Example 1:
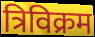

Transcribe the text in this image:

त्रिविक्रम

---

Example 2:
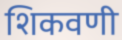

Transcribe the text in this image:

शिकवणी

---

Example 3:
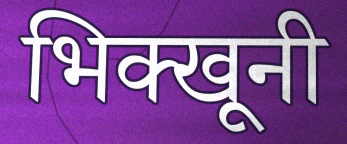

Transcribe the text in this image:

भिक्खूनी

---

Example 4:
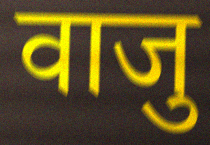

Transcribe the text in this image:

वाजु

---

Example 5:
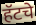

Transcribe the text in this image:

हॅटचे